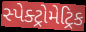
સ્પેક્ટ્રોમેટ્રિક